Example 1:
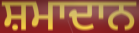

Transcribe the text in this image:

ਸ਼ਮਾਦਾਨ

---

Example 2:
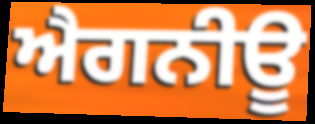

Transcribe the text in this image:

ਐਗਨੀਊ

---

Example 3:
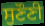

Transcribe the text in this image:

ਸੁਣੌਣੀ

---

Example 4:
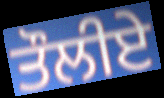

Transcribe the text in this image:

ਤੌਲੀਏ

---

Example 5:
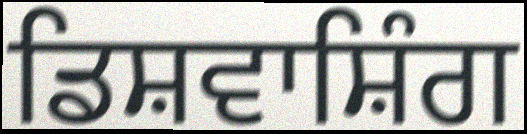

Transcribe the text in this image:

ਡਿਸ਼ਵਾਸ਼ਿੰਗ